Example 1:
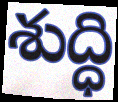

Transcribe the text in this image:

శుద్ధి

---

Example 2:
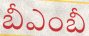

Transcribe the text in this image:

బీఎంబీ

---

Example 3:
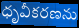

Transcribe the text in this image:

ధృవీకరణను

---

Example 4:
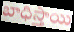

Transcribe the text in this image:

బాధిస్తాయి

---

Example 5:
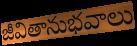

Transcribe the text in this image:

జీవితానుభవాలు